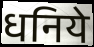
धनिये